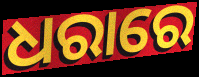
ଧରାରେ